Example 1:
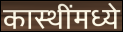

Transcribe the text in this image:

कास्थींमध्ये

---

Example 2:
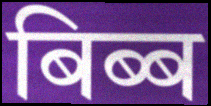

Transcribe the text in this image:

बिब्ब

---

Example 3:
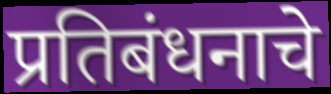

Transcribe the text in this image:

प्रतिबंधनाचे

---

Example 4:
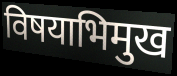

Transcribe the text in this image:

विषयाभिमुख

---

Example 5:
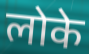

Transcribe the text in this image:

लोके